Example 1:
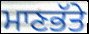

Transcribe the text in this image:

ਮਾਣਭੱਤੇ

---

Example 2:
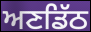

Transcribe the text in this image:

ਅਣਡਿੱਠ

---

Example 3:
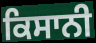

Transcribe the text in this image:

ਕਿਸਾਨੀ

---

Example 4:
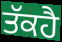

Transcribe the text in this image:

ਤੱਕਹੈ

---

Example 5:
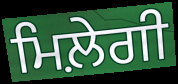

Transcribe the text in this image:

ਮਿਲ਼ੇਗੀ